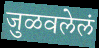
जुळवलेलं